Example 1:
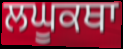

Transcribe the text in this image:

ਲਘੂਕਥਾ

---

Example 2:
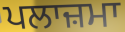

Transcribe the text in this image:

ਪਲਾਜ਼ਮਾ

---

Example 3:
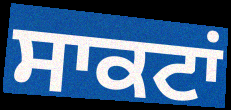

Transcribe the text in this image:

ਸਾਕਟਾਂ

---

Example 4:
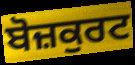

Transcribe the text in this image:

ਬੋਜ਼ਕੁਰਟ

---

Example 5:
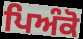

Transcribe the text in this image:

ਪਿਅੰਕੋ